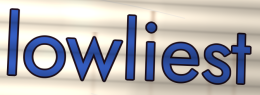
lowliest